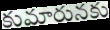
కుమారునకు